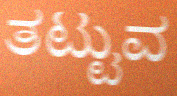
ತಟ್ಟುವ